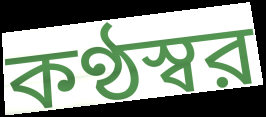
কণ্ঠস্বর